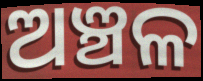
ଅଞ୍ଚଳ